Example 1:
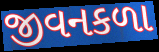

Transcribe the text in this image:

જીવનકળા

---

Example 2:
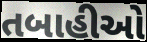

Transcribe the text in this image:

તબાહીઓ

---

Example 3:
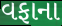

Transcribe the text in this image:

વફાના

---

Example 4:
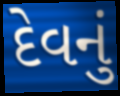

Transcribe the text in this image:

દેવનું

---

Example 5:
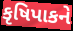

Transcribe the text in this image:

કૃષિપાકને